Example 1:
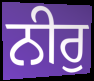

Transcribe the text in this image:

ਨੀਰੁ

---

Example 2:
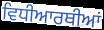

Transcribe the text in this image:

ਵਿਧੀਆਰਥੀਆਂ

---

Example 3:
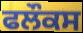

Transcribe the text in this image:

ਫਲੌਕਸ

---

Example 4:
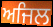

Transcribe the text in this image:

ਅਜਿਲ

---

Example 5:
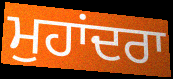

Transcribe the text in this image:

ਮੁਹਾਂਦਰਾ